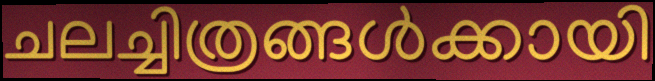
ചലച്ചിത്രങ്ങൾക്കായി